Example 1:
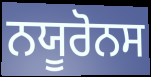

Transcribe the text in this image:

ਨਯੂਰੋਨਸ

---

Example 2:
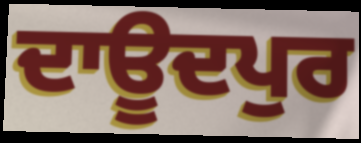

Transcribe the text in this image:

ਦਾਊਦਪੁਰ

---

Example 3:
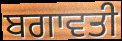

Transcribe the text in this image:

ਬਗਾਵਤੀ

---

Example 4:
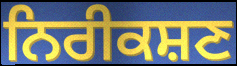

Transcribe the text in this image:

ਨਿਰੀਕਸ਼ਣ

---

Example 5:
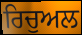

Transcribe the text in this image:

ਰਿਚੁਅਲ